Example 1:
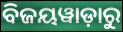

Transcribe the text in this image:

ବିଜୟୱାଡ଼ାରୁ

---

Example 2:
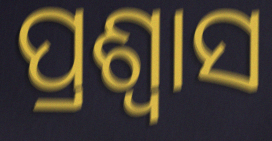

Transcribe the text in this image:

ପ୍ରଶ୍ଵାସ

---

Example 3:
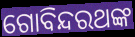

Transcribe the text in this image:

ଗୋବିନ୍ଦରଥଙ୍କ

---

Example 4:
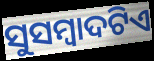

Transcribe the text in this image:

ସୁସମ୍ବାଦଟିଏ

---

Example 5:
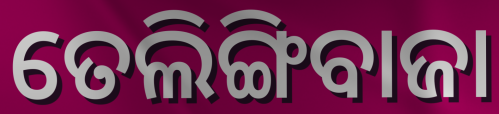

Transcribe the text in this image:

ତେଲିଙ୍ଗିବାଜା